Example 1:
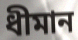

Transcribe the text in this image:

ধীমান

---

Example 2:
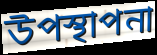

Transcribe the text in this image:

উপস্থাপনা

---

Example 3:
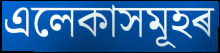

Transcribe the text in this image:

এলেকাসমূহৰ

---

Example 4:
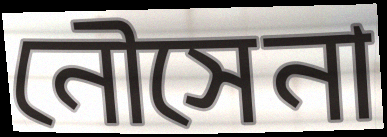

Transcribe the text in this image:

নৌসেনা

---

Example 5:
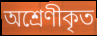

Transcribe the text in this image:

অশ্ৰেণীকৃত